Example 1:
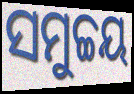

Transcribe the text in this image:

ସମୁଚ୍ଚୟ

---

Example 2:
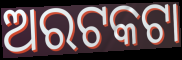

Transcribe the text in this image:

ଅରଟକଟା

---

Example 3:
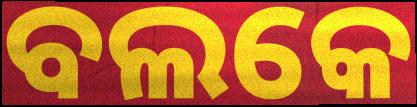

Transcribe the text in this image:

ବଲକେ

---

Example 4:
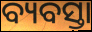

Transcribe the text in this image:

ବ୍ୟବସ୍ତା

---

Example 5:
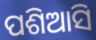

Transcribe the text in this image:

ପଶିଆସି